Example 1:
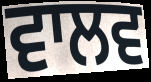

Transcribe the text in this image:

ਵਾਲਵ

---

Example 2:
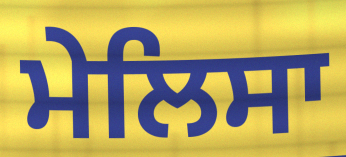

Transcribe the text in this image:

ਮੇਲਿਸਾ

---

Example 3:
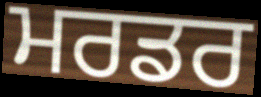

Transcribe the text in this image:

ਮਰਡਰ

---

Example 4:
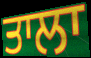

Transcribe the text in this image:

ਤਾਲਾ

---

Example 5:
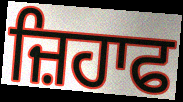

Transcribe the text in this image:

ਜ਼ਿਹਾਫ